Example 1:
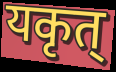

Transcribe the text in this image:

यकृत्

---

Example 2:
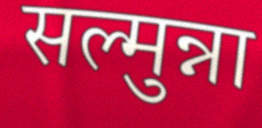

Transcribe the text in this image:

सल्मुन्ना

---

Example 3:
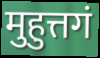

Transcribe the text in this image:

मुहुत्तगं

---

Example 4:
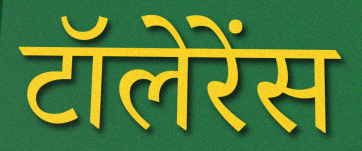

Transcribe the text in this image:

टॉलेरेंस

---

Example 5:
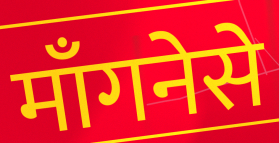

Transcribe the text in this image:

माँगनेसे